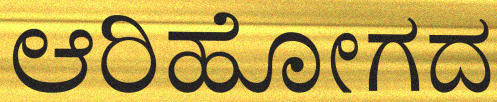
ಆರಿಹೋಗದ